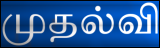
முதல்வி